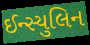
ઈન્સ્યુલિન